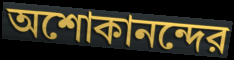
অশোকানন্দের